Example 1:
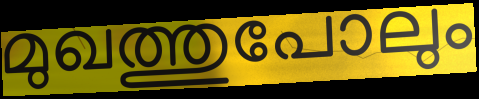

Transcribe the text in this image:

മുഖത്തുപോലും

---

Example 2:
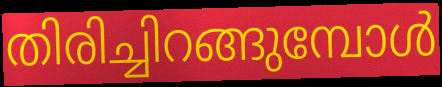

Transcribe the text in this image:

തിരിച്ചിറങ്ങുമ്പോൾ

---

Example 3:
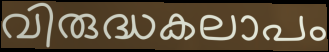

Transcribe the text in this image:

വിരുദ്ധകലാപം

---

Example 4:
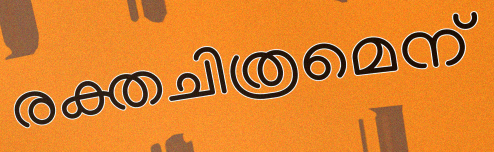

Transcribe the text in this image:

രക്തചിത്രമെന്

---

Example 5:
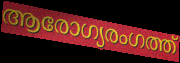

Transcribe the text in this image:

ആരോഗ്യരംഗത്ത്